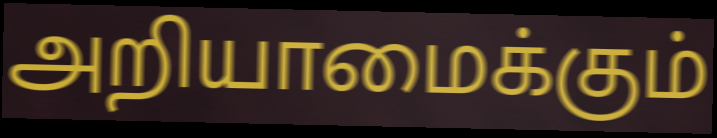
அறியாமைக்கும்